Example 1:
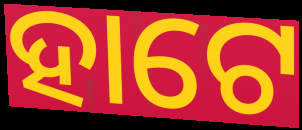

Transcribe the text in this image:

ହାଟେ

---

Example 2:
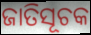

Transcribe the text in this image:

ଜାତିସୂଚକ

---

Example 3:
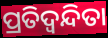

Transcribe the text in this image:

ପ୍ରତିଦ୍ଵନ୍ଦିତା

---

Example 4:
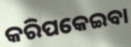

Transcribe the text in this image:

କରିପକେଇବା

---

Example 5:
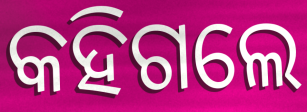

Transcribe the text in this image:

କହିଗଲେ